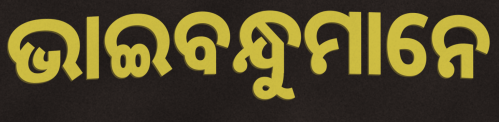
ଭାଇବନ୍ଧୁମାନେ